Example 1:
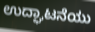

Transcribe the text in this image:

ಉದ್ಘಾಟನೆಯು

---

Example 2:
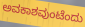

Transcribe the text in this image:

ಅವಕಾಶವುಂಟೆಂದು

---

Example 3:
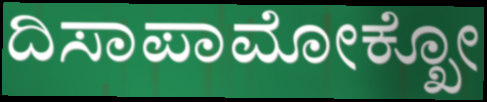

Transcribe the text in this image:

ದಿಸಾಪಾಮೋಕ್ಖೋ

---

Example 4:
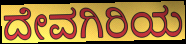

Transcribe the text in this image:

ದೇವಗಿರಿಯ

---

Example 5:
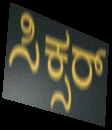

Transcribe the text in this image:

ಸಿಕ್ಸರ್